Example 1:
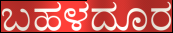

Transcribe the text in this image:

ಬಹಳದೂರ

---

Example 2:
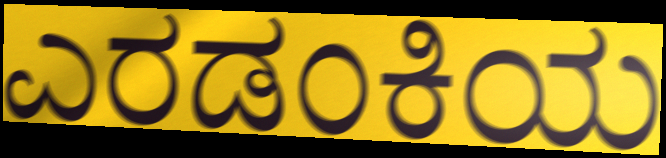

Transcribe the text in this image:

ಎರಡಂಕಿಯ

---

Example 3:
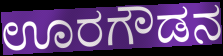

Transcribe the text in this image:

ಊರಗೌಡನ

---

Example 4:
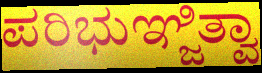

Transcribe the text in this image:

ಪರಿಭುಞ್ಜಿತ್ವಾ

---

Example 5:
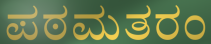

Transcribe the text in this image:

ಪಠಮತರಂ